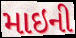
માઇની